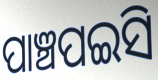
ପାଞ୍ଚପଇସି